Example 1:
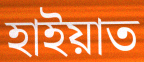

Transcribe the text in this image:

হাইয়াত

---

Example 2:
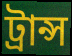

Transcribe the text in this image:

ট্রান্স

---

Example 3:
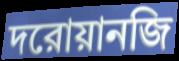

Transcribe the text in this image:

দরোয়ানজি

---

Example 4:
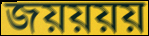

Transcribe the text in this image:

জয়য়য়য়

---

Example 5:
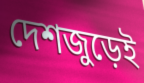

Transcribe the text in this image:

দেশজুড়েই